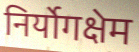
निर्योगक्षेम